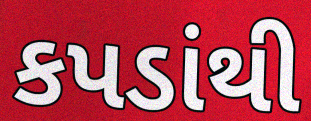
કપડાંથી